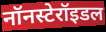
नॉनस्टेरॉइडल